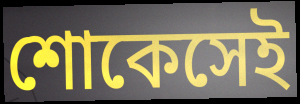
শোকেসেই